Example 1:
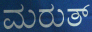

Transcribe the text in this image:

ಮರುತ್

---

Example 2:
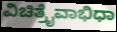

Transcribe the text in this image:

ವಿಚಿತ್ರೈವಾಭಿಧಾ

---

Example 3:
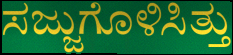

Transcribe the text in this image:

ಸಜ್ಜುಗೊಳಿಸಿತ್ತು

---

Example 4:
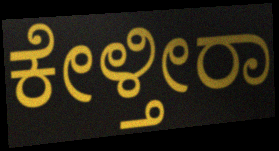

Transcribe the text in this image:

ಕೇಳ್ತೀರಾ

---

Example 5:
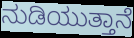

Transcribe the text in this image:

ನುಡಿಯುತ್ತಾನೆ